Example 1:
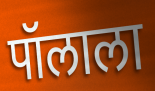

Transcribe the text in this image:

पॉलाला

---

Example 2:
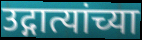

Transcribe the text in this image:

उद्गात्यांच्या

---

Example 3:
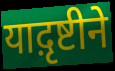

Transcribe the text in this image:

याद़ृष्टीने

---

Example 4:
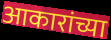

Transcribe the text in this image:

आकारांच्या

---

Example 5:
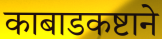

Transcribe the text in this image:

काबाडकष्टाने